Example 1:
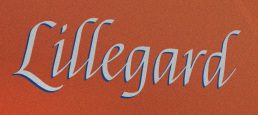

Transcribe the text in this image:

Lillegard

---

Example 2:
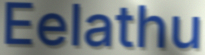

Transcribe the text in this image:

Eelathu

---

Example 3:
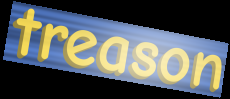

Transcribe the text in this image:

treason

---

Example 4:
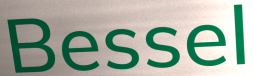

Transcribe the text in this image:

Bessel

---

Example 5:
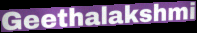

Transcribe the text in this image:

Geethalakshmi